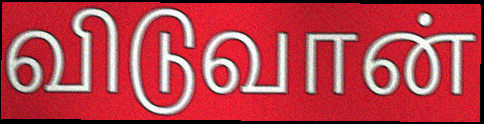
விடுவான்